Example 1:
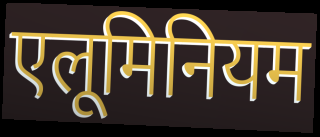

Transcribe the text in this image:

एलूमिनियम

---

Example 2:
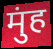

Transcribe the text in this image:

मुंह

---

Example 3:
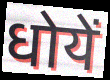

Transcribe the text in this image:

धोयें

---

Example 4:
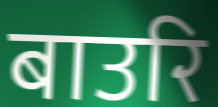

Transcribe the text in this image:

बाउरि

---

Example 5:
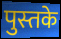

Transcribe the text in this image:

पुस्‍तके